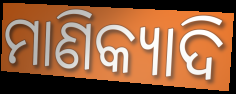
ମାଣିକ୍ୟାଦି